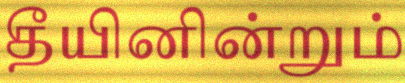
தீயினின்றும்